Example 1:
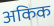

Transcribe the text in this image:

अकिक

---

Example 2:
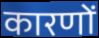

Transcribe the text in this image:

कारणों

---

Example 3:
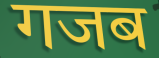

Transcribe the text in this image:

गजब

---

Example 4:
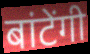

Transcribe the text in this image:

बांटेंगी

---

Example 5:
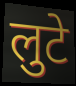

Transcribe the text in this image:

लुटे